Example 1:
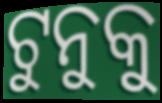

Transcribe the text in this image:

ଟୁନୁକୁ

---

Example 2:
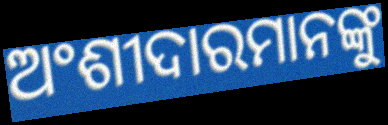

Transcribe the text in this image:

ଅଂଶୀଦାରମାନଙ୍କୁ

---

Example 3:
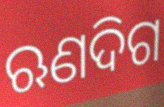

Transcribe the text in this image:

ଋଣଦିଗ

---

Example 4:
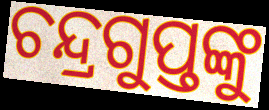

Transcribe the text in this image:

ଚନ୍ଦ୍ରଗୁପ୍ତଙ୍କୁ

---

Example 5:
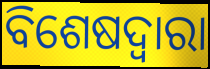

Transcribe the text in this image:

ବିଶେଷଦ୍ଵାରା